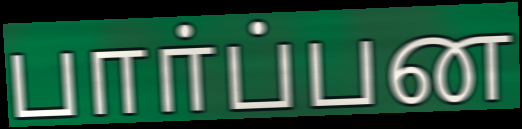
பார்ப்பன